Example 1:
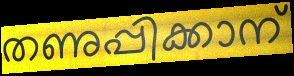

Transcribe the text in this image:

തണുപ്പിക്കാന്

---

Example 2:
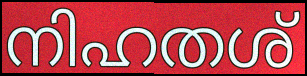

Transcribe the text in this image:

നിഹതശ്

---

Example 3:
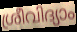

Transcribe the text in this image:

ശ്രീവിദ്യാം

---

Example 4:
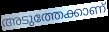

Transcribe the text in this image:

അടുത്തേക്കാണ്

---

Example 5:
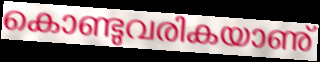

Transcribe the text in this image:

കൊണ്ടുവരികയാണു്